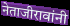
नेताजीरावांनी